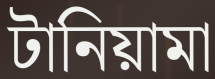
টানিয়ামা